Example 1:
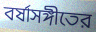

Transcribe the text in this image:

বর্ষাসঙ্গীতের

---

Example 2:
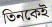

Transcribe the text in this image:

তিনকেই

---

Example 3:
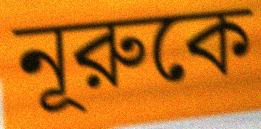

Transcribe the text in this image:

নূরুকে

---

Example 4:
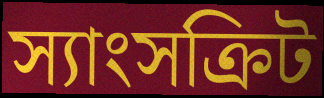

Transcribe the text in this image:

স্যাংসক্রিট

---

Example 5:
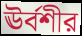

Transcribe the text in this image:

ঊর্বশীর